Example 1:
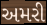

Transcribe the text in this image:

અમરી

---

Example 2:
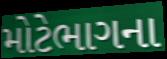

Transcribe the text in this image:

મોટેભાગના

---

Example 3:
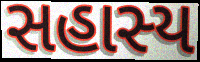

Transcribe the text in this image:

સહાસ્ય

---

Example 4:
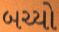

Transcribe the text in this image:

બચ્યો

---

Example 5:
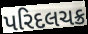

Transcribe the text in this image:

પરિદલચક્ર